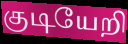
குடியேறி